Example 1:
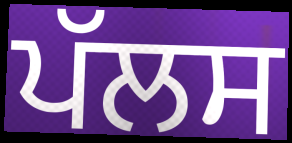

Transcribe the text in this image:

ਪੱਲਸ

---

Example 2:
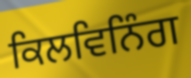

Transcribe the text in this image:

ਕਿਲਵਿਨਿੰਗ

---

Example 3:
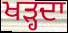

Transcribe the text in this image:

ਖੜ੍ਹਦਾ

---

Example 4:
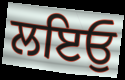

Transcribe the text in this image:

ਲਇਓੁ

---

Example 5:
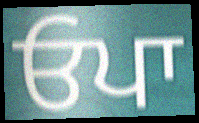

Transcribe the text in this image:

ਓਪਾ